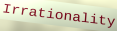
Irrationality